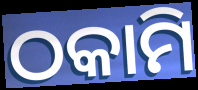
ଠକାମି